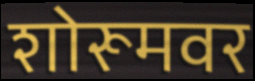
शोरूमवर